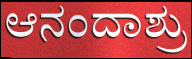
ಆನಂದಾಶ್ರು